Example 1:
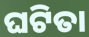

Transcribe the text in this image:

ଘଟିତା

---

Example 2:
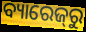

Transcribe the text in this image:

ବ୍ୟାରେଜ୍‌ରୁ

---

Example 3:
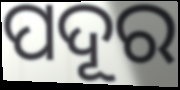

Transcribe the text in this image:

ପଦୂର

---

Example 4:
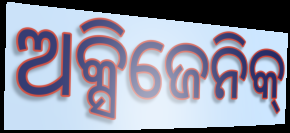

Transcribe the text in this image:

ଅକ୍ସିଜେନିକ୍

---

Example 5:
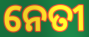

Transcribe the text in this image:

ନେତୀ